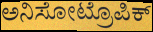
ಅನಿಸೋಟ್ರೊಪಿಕ್